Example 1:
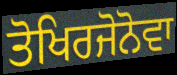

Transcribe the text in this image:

ਤੋਖਿਰਜੋਨੋਵਾ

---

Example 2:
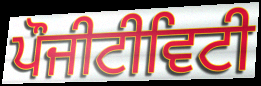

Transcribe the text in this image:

ਪੌਜੀਟੀਵਿਟੀ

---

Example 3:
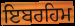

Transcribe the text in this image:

ਇਬਰਹਿਮ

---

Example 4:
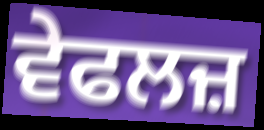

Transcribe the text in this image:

ਵੇਫਲਜ਼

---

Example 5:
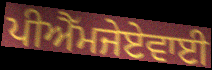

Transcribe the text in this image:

ਪੀਐੱਮਜੇਏਵਾਈ